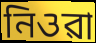
নিওৱা